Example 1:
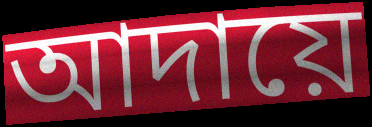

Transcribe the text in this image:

আদায়ে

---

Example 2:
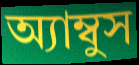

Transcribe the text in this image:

অ্যাম্বুস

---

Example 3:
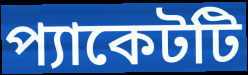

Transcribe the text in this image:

প্যাকেটটি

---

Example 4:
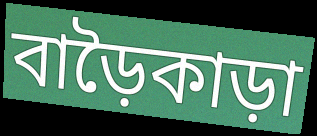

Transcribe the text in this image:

বাড়ৈকাড়া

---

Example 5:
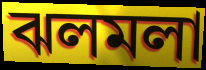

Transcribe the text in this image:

ঝলমলা